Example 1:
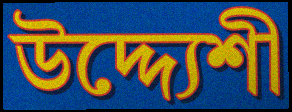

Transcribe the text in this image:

উদ্দ্যেশী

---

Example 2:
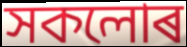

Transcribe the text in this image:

সকলোৰ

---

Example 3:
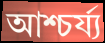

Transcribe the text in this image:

আশ্চৰ্য্য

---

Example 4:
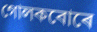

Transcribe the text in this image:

গোলকবোৰে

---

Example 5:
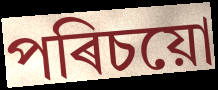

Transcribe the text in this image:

পৰিচয়ো